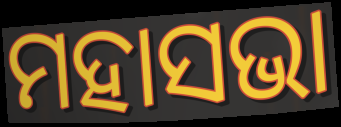
ମହାସଭା